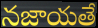
నజాయతే